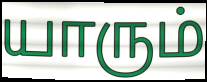
யாரும்